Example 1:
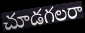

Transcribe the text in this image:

చూడగలరా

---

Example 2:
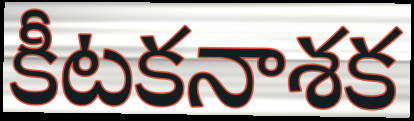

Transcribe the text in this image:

కీటకనాశక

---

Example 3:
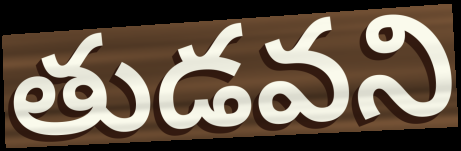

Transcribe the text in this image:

తుడవని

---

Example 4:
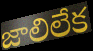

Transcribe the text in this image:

జాలిలేక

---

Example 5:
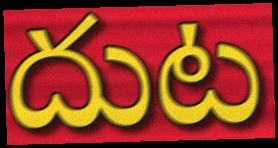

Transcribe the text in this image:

దుట